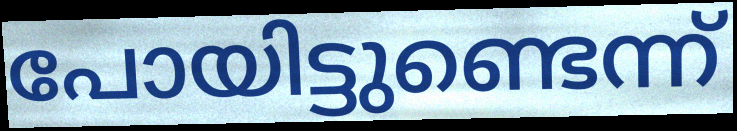
പോയിട്ടുണ്ടെന്ന്